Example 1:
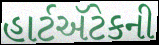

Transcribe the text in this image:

હાર્ટઍટેકની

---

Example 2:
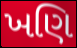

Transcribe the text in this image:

ખણિ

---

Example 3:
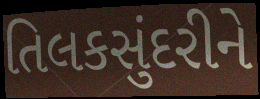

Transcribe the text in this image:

તિલકસુંદરીને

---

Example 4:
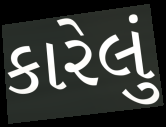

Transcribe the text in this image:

કારેલું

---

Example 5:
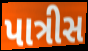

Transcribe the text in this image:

પાત્રીસ